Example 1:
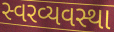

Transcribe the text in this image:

સ્વરવ્યવસ્થા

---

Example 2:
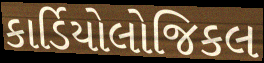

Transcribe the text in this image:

કાર્ડિયોલોજિકલ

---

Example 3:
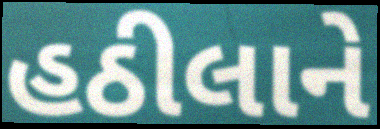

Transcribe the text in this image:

હઠીલાને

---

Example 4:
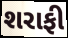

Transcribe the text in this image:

શરાફી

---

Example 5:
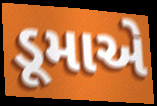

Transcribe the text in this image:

ડૂમાએ